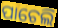
ପାଚେଲି